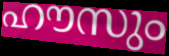
ഹൗസും